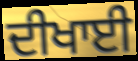
ਦੀਖਾਈ